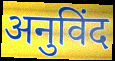
अनुविंद